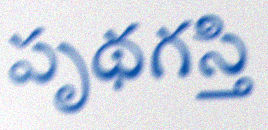
పృథగస్తి